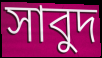
সাবুদ